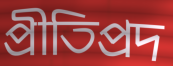
প্রীতিপ্রদ